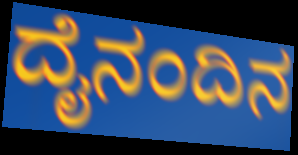
ದೈನಂದಿನ